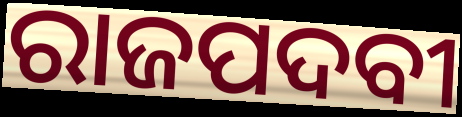
ରାଜପଦବୀ